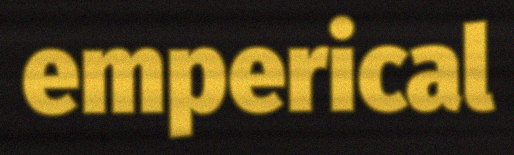
emperical